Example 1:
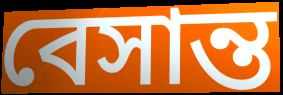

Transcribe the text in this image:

বেসান্ত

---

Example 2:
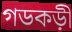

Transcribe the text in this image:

গডকড়ী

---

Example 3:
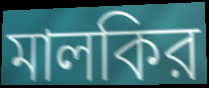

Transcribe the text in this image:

মালকির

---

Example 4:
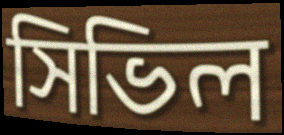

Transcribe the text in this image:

সিভিল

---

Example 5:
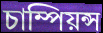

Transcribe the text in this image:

চাম্পিয়ন্স